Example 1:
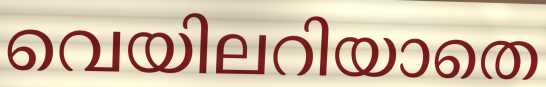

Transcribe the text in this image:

വെയിലറിയാതെ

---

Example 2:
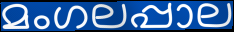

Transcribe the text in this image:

മംഗലപ്പാല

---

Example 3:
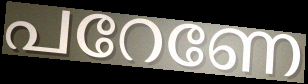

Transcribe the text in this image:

പറേണേ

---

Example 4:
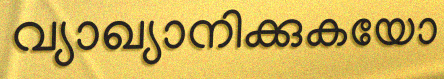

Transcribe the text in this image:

വ്യാഖ്യാനിക്കുകയോ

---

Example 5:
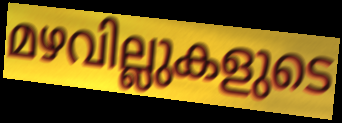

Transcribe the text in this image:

മഴവില്ലുകളുടെ